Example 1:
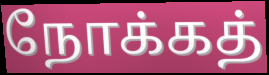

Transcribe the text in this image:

நோக்கத்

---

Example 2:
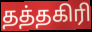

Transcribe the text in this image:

தத்தகிரி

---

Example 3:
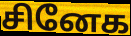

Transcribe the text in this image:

சினேக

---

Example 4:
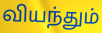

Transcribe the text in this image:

வியந்தும்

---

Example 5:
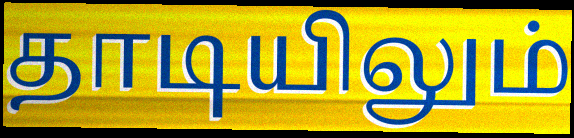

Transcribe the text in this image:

தாடியிலும்